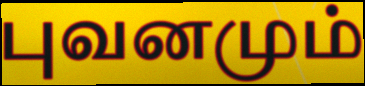
புவனமும்